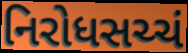
નિરોધસચ્ચં